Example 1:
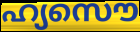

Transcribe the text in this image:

ഹ്യസൌ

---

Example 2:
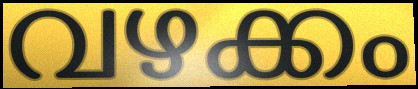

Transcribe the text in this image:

വഴക്കം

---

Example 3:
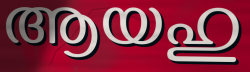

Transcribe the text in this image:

ആയഹു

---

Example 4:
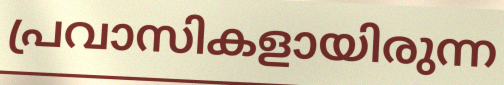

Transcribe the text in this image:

പ്രവാസികളായിരുന്ന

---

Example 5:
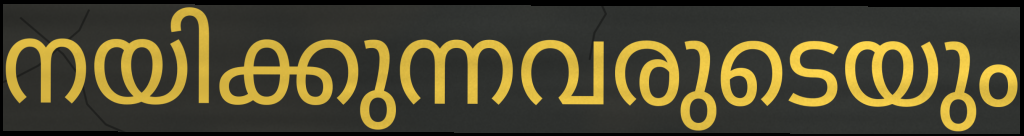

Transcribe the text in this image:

നയിക്കുന്നവരുടെയും